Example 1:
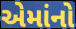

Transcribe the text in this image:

એમાંનો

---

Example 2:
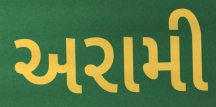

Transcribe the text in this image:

અરામી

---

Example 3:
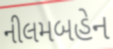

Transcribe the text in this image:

નીલમબહેન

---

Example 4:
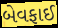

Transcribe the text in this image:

બેવફાઈ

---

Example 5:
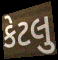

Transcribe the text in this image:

કેટલુ